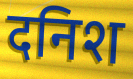
दनिश